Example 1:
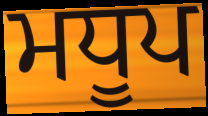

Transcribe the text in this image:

ਮਧੂਪ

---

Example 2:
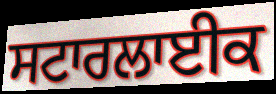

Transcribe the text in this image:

ਸਟਾਰਲਾਈਕ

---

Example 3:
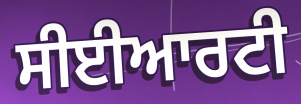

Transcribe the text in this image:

ਸੀਈਆਰਟੀ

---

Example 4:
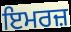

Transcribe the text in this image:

ਇਮਰਜ਼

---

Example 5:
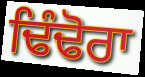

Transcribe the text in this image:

ਢਿੰਢੋਰਾ